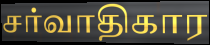
சர்வாதிகார